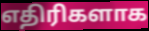
எதிரிகளாக